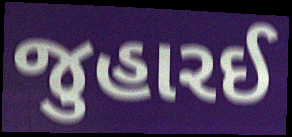
જુહારઈ